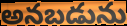
అనబడును